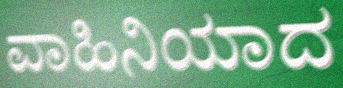
ವಾಹಿನಿಯಾದ